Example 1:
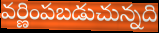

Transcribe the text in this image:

వర్ణింపబడుచున్నది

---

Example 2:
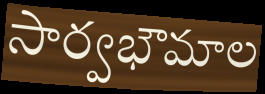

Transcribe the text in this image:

సార్వభౌమాల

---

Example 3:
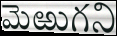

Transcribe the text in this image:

మెఱుగని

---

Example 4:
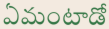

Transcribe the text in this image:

ఏమంటాడో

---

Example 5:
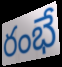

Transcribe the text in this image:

రంభే